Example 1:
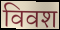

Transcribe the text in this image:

विवश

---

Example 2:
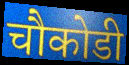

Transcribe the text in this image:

चौकोडी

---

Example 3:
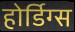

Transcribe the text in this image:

होर्डिग्स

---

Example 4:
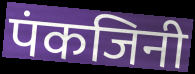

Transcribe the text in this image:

पंकजिनी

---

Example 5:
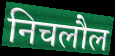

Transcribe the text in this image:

निचलौल